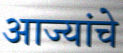
आज्यांचे